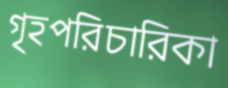
গৃহপরিচারিকা